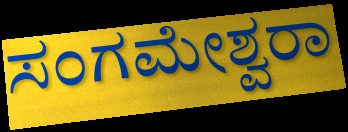
ಸಂಗಮೇಶ್ವರಾ